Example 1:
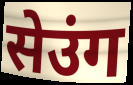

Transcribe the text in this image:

सेउंग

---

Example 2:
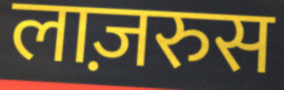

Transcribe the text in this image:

लाज़रुस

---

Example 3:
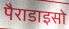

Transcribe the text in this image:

पैराडाइसो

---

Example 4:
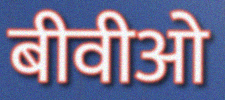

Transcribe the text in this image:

बीवीओ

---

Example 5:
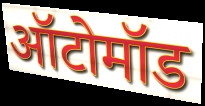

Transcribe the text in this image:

ऑटोमॉड